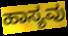
ಹಾಸ್ಯವು